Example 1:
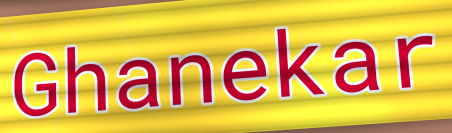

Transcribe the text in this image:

Ghanekar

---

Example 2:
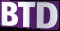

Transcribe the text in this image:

BTD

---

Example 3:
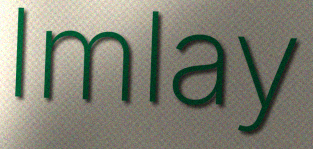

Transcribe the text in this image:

Imlay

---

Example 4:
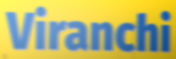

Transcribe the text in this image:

Viranchi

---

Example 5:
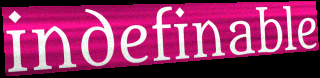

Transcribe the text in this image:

indefinable